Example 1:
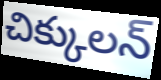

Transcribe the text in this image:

చిక్కులన్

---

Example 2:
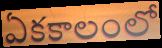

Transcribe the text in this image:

ఏకకాలంలో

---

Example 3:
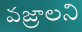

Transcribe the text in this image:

వజ్రాలని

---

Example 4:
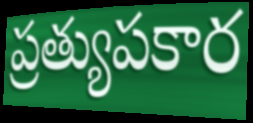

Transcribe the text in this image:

ప్రత్యుపకార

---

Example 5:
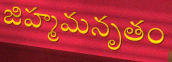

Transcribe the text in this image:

జిహ్మమనృతం